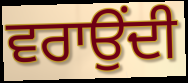
ਵਰਾਉਂਦੀ